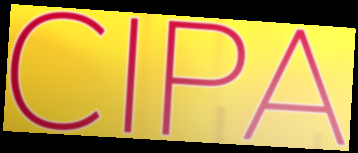
CIPA